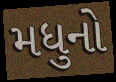
મધુનો